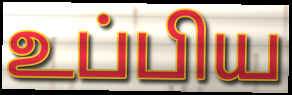
உப்பிய